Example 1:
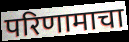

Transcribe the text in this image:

परिणामाचा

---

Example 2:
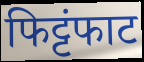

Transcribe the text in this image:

फिट्टंफाट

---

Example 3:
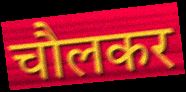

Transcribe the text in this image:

चौलकर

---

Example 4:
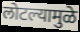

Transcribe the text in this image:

लोटल्यामुळे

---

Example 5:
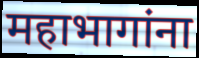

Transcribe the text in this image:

महाभागांना